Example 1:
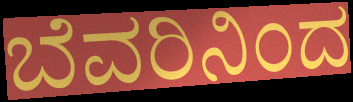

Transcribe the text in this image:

ಬೆವರಿನಿಂದ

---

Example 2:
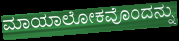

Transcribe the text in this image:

ಮಾಯಾಲೋಕವೊಂದನ್ನು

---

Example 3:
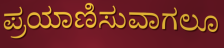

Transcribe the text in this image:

ಪ್ರಯಾಣಿಸುವಾಗಲೂ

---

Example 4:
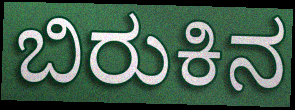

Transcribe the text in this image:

ಬಿರುಕಿನ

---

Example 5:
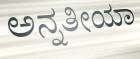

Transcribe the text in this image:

ಅನ್ನತೀಯಾ